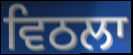
ਵਿਠਲਾ